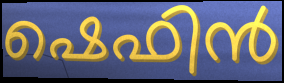
ഷെഫിൻ